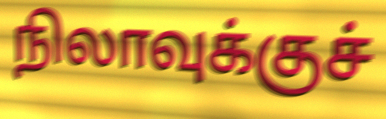
நிலாவுக்குச்